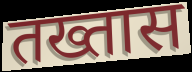
तख्तास